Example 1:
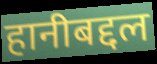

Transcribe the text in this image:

हानीबद्दल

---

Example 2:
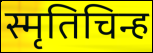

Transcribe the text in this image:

स्मृतिचिन्ह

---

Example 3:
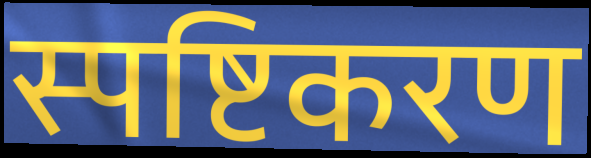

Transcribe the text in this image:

स्पष्टिकरण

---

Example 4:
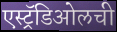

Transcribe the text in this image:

एस्ट्रॅडिओलची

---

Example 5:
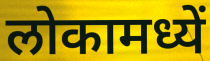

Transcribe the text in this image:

लोकामध्यें